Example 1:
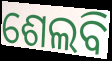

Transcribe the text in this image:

ଶେଲବି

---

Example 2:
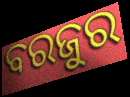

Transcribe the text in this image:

ବରଜୁର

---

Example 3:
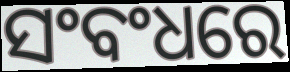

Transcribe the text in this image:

ସଂବଂଧରେ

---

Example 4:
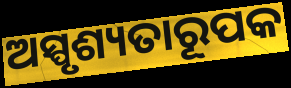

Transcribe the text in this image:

ଅସ୍ପୃଶ୍ୟତାରୂପକ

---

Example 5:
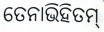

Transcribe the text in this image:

ତେନାଭିହିତମ୍